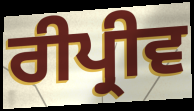
ਰੀਪ੍ਰੀਵ